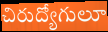
చిరుద్యోగులూ